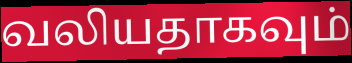
வலியதாகவும்